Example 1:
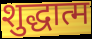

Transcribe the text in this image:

शुद्धात्म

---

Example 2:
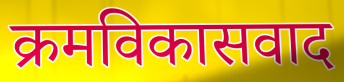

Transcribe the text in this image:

क्रमविकासवाद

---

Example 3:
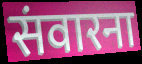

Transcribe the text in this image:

संवारना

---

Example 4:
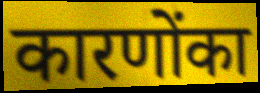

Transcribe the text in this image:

कारणोंका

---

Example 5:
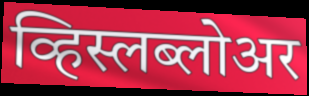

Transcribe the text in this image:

व्हिस्लब्लोअर